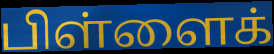
பிள்ளைக்